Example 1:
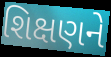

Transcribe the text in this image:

શિક્ષણને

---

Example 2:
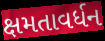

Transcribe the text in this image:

ક્ષમતાવર્ધન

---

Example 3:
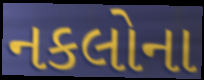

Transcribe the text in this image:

નકલોના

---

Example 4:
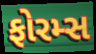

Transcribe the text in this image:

ફોરમ્સ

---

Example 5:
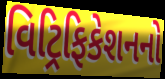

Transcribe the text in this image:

વિટ્રિફિકેશનનો